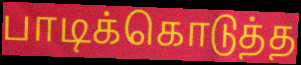
பாடிக்கொடுத்த